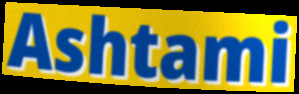
Ashtami